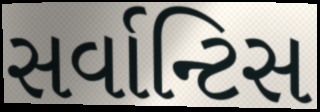
સર્વાન્ટિસ